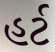
હર્ટ